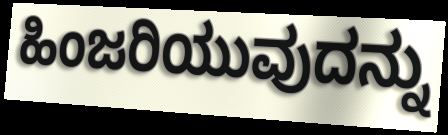
ಹಿಂಜರಿಯುವುದನ್ನು